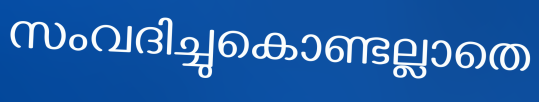
സംവദിച്ചുകൊണ്ടല്ലാതെ